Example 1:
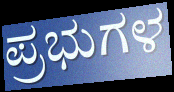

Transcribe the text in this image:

ಪ್ರಭುಗಳ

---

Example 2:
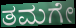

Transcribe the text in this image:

ತಮಗೇ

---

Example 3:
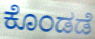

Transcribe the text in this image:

ಕೊಂಡಡೆ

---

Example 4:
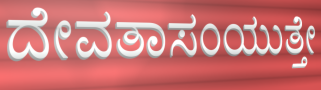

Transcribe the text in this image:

ದೇವತಾಸಂಯುತ್ತೇ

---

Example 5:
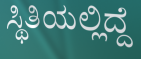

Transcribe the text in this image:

ಸ್ಥಿತಿಯಲ್ಲಿದ್ದೆ